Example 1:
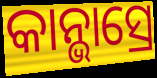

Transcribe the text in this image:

କାନ୍ଭାସ୍ରେ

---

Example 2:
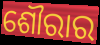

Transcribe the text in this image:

ଶୌରାର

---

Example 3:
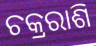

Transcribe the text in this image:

ଚକ୍ରରାଶି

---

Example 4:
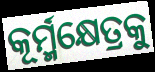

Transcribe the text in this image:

କୂର୍ମ୍ମକ୍ଷେତ୍ରକୁ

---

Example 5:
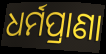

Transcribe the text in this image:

ଧର୍ମପ୍ରାଣା